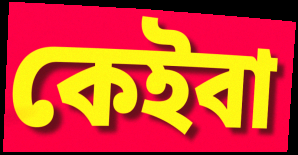
কেইবা